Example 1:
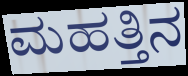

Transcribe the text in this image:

ಮಹತ್ತಿನ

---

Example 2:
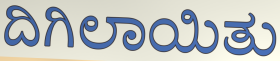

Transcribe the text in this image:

ದಿಗಿಲಾಯಿತು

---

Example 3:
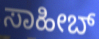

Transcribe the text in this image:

ಸಾಹೀಬ್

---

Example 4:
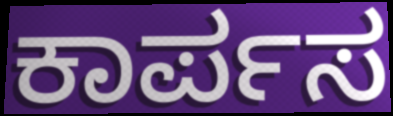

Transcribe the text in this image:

ಕಾರ್ಪಸ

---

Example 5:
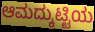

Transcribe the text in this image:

ಆಮದ್ಕುಟ್ಟಿಯ